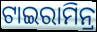
ଟାଇରାମିନ୍ର